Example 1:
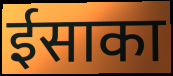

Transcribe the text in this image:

ईसाका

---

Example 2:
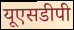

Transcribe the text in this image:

यूएसडीपी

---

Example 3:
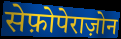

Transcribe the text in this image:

सेफ़ोपेराज़ोन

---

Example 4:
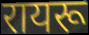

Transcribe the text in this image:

रायरू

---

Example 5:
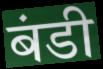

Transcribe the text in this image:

बंडी